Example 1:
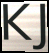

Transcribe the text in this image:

KJ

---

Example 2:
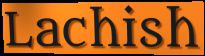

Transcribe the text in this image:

Lachish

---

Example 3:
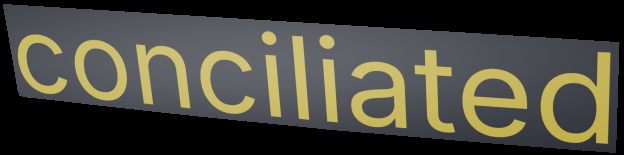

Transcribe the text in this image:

conciliated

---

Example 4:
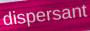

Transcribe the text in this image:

dispersant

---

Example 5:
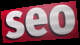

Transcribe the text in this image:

seo